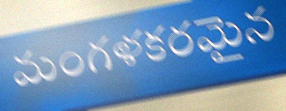
మంగళకరమైన